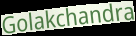
Golakchandra